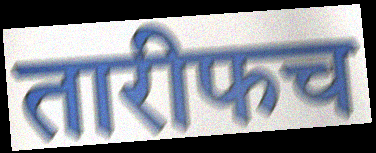
तारीफच